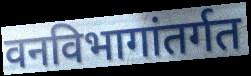
वनविभागांतर्गत